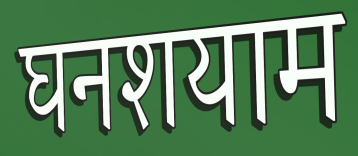
घनशयाम